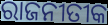
ରାଜନୀତୀକ